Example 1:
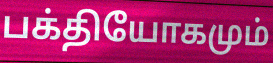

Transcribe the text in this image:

பக்தியோகமும்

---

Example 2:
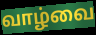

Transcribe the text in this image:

வாழ்வை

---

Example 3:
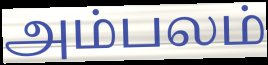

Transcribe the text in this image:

அம்பலம்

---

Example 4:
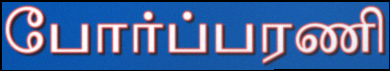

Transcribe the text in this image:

போர்ப்பரணி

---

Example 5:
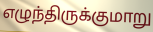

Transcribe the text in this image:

எழுந்திருக்குமாறு